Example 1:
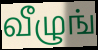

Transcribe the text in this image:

வீழுங்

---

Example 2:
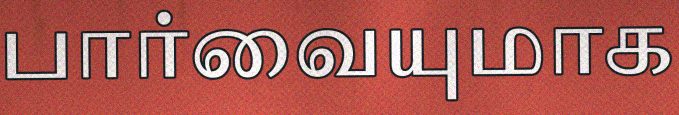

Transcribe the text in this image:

பார்வையுமாக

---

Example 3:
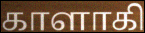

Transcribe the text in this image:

காளாகி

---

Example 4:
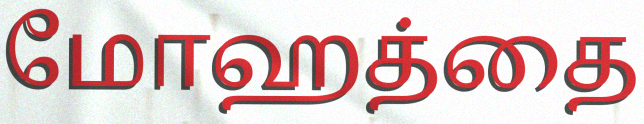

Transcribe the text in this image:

மோஹத்தை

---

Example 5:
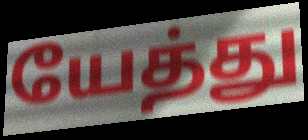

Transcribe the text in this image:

யேத்து